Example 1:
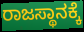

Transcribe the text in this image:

ರಾಜಸ್ಥಾನಕ್ಕೆ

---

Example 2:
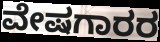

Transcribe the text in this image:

ವೇಷಗಾರರ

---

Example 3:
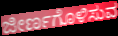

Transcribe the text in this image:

ಜೀರ್ಣಗೊಳಿಸುವ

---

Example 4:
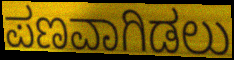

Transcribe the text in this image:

ಪಣವಾಗಿಡಲು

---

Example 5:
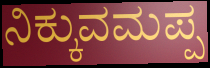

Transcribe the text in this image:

ನಿಕ್ಕುವಮಪ್ಪ